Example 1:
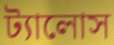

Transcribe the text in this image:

ট্যালোস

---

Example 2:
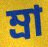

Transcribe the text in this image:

ম্রা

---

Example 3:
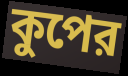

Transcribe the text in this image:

কুপের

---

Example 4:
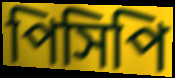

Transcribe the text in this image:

পিসিপি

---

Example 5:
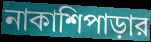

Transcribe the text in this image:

নাকাশিপাড়ার